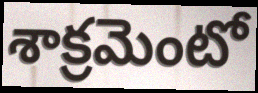
శాక్రమెంటో